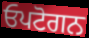
ਓਪਟੋਗਨ